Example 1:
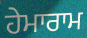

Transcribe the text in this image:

ਹੇਮਾਰਾਮ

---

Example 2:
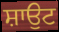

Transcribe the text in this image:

ਸ਼ਾਉਟ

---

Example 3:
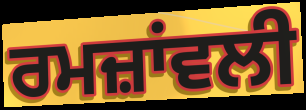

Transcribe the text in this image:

ਰਮਜ਼ਾਂਵਲੀ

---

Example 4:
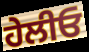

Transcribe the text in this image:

ਹੇਲੀਓ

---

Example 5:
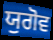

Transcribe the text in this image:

ਯੁਗੋਵ